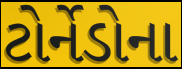
ટોર્નેડોના